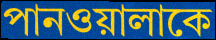
পানওয়ালাকে